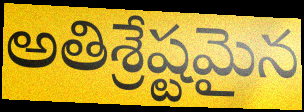
అతిశ్రేష్టమైన